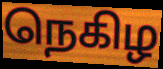
நெகிழ